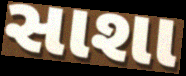
સાશા